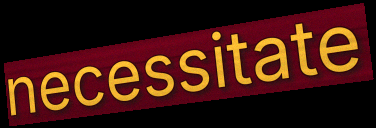
necessitate